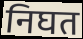
निघत